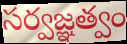
సర్వజ్ఞత్వం